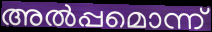
അൽപ്പമൊന്ന്